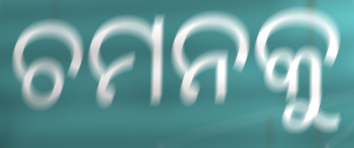
ଚମନକୁ